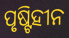
ପୃଷ୍ଟିହୀନ